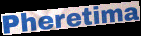
Pheretima